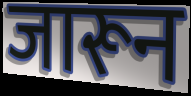
जारून